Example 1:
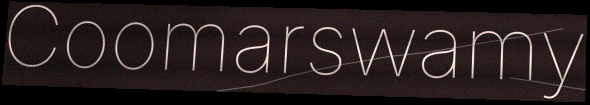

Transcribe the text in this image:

Coomarswamy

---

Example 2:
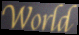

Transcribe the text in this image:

World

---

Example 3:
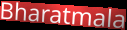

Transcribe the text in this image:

Bharatmala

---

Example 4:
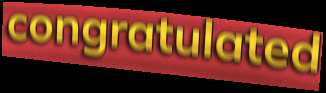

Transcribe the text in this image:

congratulated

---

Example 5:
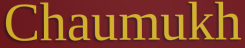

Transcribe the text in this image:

Chaumukh